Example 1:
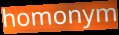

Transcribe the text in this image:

homonym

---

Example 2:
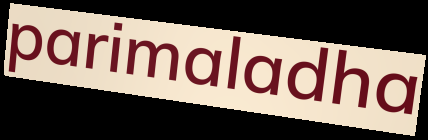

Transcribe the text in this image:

parimaladha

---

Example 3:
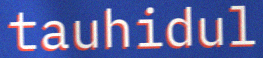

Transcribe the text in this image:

tauhidul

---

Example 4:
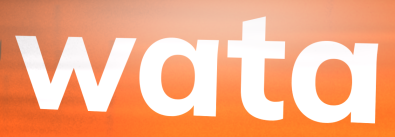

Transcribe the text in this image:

wata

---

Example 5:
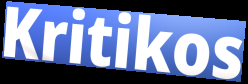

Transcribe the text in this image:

Kritikos